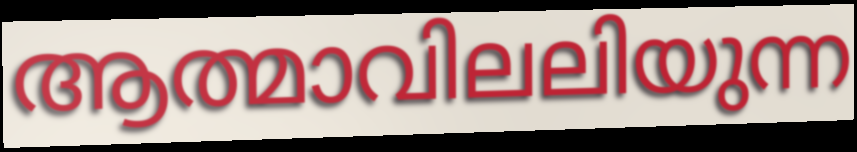
ആത്മാവിലലിയുന്ന